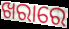
ଖରାରେ